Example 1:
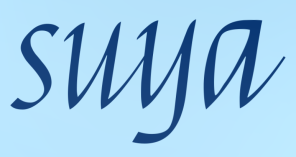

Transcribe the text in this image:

suya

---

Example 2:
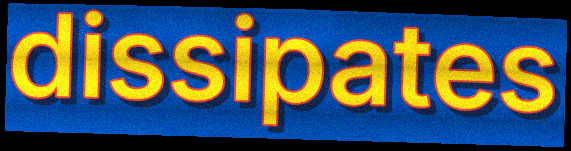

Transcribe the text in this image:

dissipates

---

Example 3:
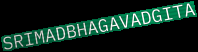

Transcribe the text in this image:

SRIMADBHAGAVADGITA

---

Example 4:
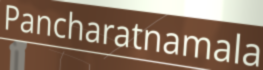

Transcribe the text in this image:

Pancharatnamala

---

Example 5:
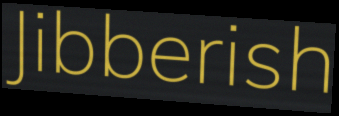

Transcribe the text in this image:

Jibberish